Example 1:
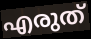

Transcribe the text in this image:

എരുത്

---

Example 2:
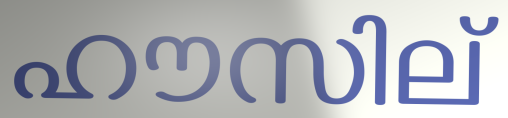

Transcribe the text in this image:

ഹൗസില്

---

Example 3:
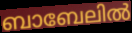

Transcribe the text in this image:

ബാബേലിൽ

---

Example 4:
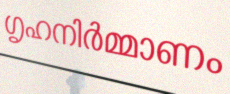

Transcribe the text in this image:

ഗൃഹനിർമ്മാണം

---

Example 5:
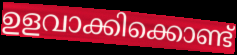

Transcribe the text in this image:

ഉളവാക്കിക്കൊണ്ട്